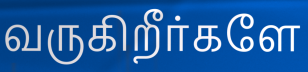
வருகிறீர்களே